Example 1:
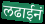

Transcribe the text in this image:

लढाईनं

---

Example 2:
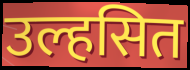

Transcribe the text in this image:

उल्हसित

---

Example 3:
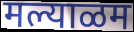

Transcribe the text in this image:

मल्याळम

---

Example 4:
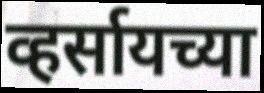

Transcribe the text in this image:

व्हर्सायच्या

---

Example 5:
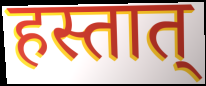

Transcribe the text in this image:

हस्तात्